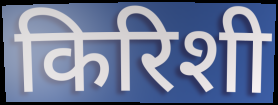
किरिशी